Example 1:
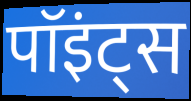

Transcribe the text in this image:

पॉइंट्स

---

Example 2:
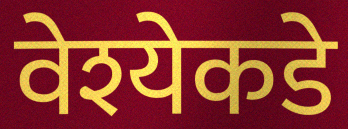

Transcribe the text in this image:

वेश्येकडे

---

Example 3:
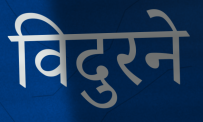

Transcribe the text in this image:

विदुरने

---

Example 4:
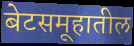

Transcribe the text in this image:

बेटसमूहातील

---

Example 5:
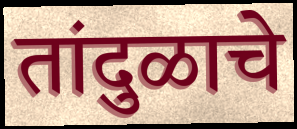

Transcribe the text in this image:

तांदुळाचे